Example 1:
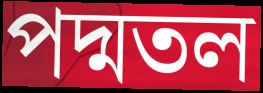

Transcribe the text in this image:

পদ্মতল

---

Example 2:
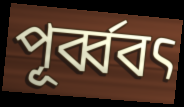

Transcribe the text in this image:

পূর্ব্ববৎ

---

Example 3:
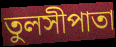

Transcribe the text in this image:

তুলসীপাতা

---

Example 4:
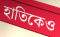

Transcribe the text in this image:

হাতিকেও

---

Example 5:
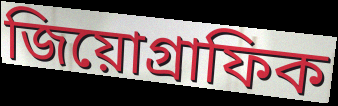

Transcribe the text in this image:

জিয়োগ্রাফিক